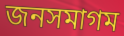
জনসমাগম